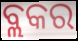
ବ୍ଲକର